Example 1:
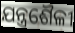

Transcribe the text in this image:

ଯନ୍ତ୍ରଶୈଳୀ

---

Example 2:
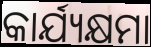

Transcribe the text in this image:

କାର୍ଯ୍ୟକ୍ଷମା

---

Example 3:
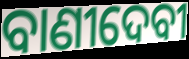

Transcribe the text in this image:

ବାଣୀଦେବୀ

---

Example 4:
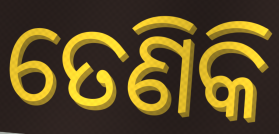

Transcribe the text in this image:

ତେଣିକି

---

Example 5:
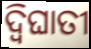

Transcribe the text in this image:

ଦ୍ବିଘାତୀ